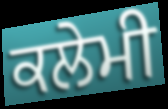
ਕਲੇਮੀ